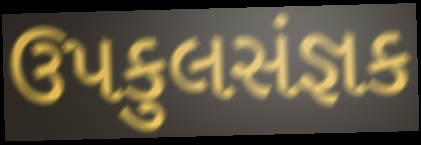
ઉપકુલસંજ્ઞક